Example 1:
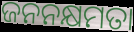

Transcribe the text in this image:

ଜନନକ୍ଷମତା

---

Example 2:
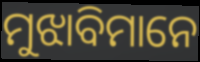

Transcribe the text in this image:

ମୁଝାବିମାନେ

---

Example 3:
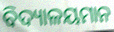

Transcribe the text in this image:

ବିଦ୍ୟାଳୟମାନ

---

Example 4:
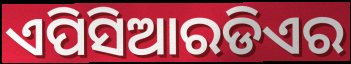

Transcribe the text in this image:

ଏପିସିଆରଡିଏର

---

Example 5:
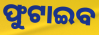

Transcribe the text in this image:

ଫୁଟାଇବ